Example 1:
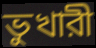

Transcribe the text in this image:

ভুখারী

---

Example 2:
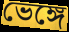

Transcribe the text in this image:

ভেঙ্গে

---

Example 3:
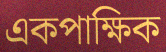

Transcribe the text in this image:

একপাক্ষিক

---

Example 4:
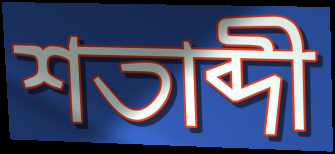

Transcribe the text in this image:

শতাব্দী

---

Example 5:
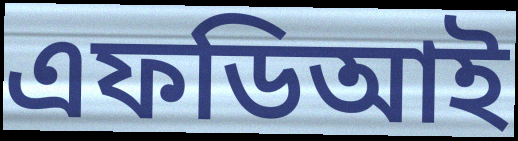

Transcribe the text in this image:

এফডিআই